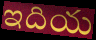
ఇదియ